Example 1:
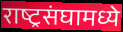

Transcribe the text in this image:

राष्ट्रसंघामध्ये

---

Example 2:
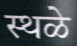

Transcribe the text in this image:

स्थळे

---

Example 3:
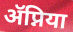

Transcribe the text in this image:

ॲप्निया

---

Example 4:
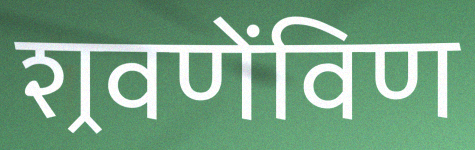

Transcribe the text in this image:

श्रवणेंविण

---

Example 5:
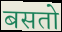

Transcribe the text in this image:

बसतो